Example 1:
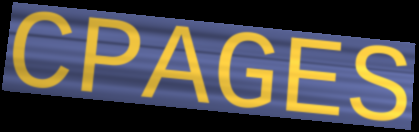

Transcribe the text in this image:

CPAGES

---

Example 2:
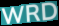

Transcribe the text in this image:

WRD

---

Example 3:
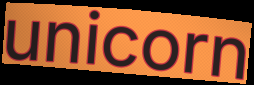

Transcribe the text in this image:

unicorn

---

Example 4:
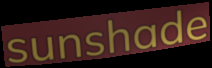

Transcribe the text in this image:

sunshade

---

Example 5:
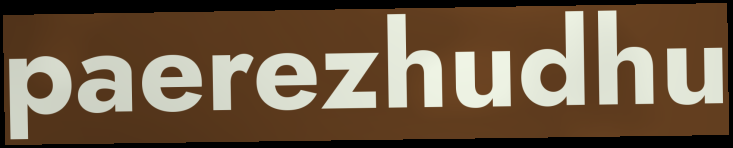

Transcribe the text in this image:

paerezhudhu